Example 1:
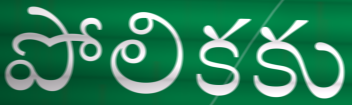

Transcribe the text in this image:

పోలికకు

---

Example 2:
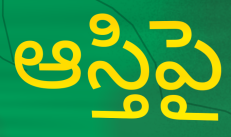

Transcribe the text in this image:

ఆస్తిపై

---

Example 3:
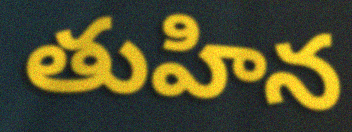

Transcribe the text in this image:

తుహిన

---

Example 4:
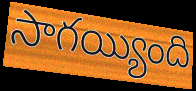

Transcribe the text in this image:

సాగయ్యింది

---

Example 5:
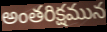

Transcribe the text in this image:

అంతరిక్షమున